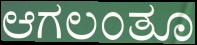
ಆಗಲಂತೂ